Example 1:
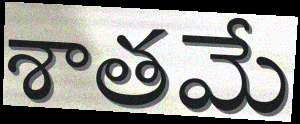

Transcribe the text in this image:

శాతమే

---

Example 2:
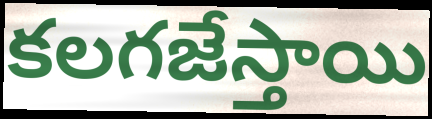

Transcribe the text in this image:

కలగజేస్తాయి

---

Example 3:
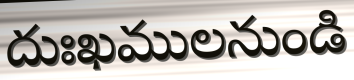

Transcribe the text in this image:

దుఃఖములనుండి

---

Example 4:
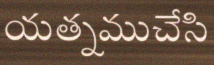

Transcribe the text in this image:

యత్నముచేసి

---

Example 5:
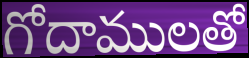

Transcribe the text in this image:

గోదాములతో